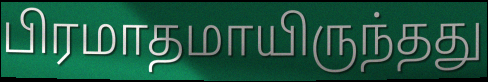
பிரமாதமாயிருந்தது